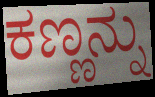
ಕಣ್ಣನ್ನು